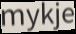
mykje